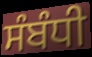
ਸੰਬੰਧੀ